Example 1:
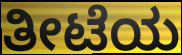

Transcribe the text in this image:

ತೀಟೆಯ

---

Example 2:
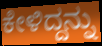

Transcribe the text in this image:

ಕೇಳಿದ್ದನ್ನು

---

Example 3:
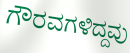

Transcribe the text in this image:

ಗೌರವಗಳಿದ್ದವು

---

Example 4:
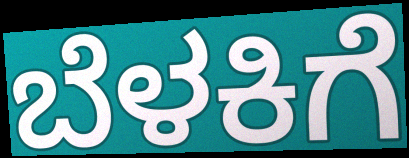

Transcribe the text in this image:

ಬೆಳಕಿಗೆ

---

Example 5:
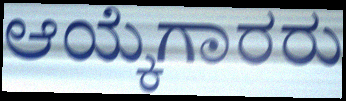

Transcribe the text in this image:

ಆಯ್ಕೆಗಾರರು